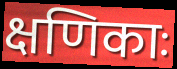
क्षणिकाः